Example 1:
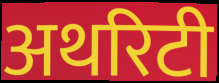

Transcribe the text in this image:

अथरिटी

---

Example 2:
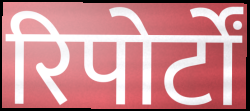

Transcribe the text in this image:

रिपोर्टों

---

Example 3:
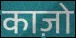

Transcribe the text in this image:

काज़ो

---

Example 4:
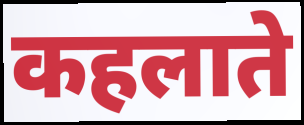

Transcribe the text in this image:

कहलाते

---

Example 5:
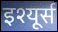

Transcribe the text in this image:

इश्यूर्स